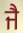
ਜੈ